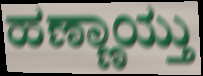
ಹಣ್ಣಾಯ್ತು